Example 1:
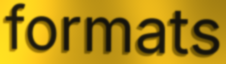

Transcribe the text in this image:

formats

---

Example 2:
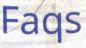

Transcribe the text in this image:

Faqs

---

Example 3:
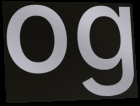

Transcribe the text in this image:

og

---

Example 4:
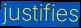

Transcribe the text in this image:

justifies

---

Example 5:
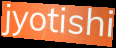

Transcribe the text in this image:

jyotishi